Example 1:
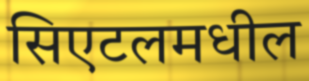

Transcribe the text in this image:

सिएटलमधील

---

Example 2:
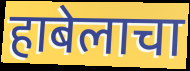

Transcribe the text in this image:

हाबेलाचा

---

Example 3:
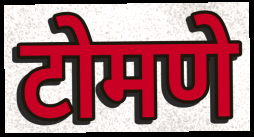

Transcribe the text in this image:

टोमणे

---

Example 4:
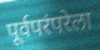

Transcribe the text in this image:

पूर्वपरंपरेला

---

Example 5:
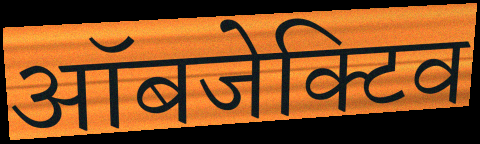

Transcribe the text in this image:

ऑबजेक्टिव